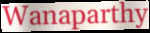
Wanaparthy